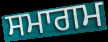
ਸਮਾਗਮ